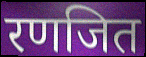
रणजित